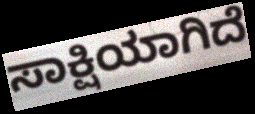
ಸಾಕ್ಷಿಯಾಗಿದೆ